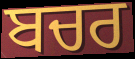
ਬਚਰ